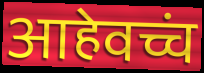
आहेवच्चं